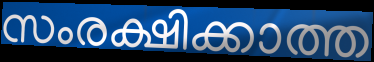
സംരക്ഷിക്കാത്ത